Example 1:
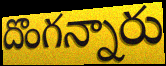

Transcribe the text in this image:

దొంగన్నారు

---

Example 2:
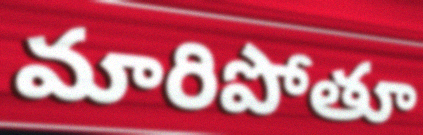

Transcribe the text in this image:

మారిపోతూ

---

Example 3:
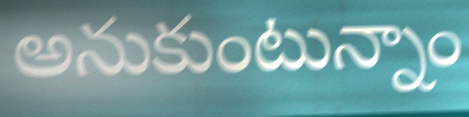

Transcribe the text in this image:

అనుకుంటున్నాం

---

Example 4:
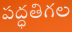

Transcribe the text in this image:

పద్ధతిగల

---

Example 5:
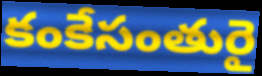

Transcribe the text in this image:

కంకేసంతురై